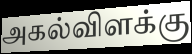
அகல்விளக்கு